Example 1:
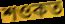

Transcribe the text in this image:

শওকত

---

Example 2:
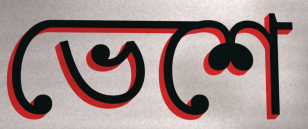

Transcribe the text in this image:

ভেশে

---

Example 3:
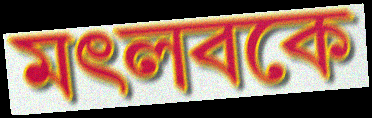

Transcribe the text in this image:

মৎলবকে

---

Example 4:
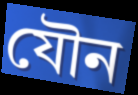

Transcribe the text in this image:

যৌন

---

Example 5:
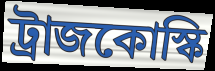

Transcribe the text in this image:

ট্রাজকোস্কি